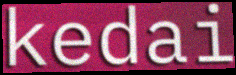
kedai